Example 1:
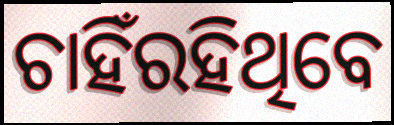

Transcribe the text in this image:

ଚାହିଁରହିଥିବେ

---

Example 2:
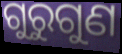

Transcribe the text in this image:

ଗୁରୁଗୁଣ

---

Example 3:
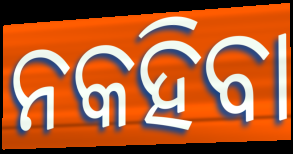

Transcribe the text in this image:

ନକହିବା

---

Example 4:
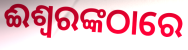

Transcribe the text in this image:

ଈଶ୍ୱରଙ୍କଠାରେ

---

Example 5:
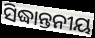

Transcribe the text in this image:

ସିଦ୍ଧାନ୍ତନୀୟ